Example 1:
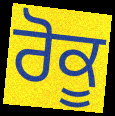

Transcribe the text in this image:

ਰੋਕੂ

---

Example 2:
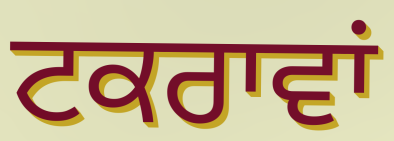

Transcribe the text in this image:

ਟਕਰਾਵਾਂ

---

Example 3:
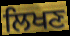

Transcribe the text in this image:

ਲਿਖਣ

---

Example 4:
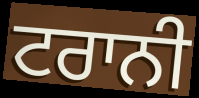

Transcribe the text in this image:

ਟਰਾਨੀ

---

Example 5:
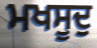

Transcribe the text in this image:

ਮਖਸੂਦੁ